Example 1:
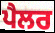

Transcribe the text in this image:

ਪੈਲਰ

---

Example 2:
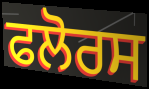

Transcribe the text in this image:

ਫਲੋਰਸ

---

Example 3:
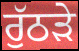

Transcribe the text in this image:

ਰੁੱਠੜੇ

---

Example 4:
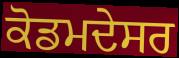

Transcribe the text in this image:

ਕੋਡਮਦੇਸਰ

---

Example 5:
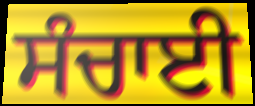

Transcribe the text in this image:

ਸੰਚਾਈ